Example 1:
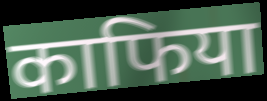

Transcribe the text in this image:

काफिया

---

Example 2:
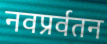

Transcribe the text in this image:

नवप्रर्वतन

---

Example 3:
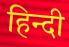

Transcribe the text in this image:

हिन्‍दी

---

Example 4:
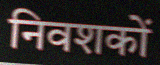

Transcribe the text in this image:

निवशकों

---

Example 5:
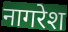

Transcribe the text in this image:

नागरेश